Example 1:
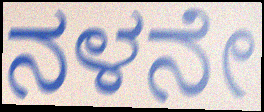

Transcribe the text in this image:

ನಳನೇ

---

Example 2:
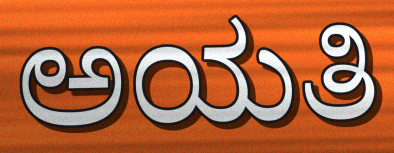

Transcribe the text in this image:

ಅಯತಿ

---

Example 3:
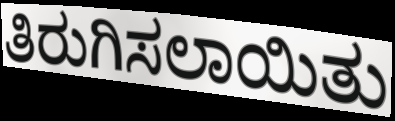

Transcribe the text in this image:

ತಿರುಗಿಸಲಾಯಿತು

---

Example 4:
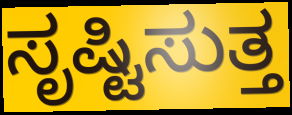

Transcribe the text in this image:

ಸೃಷ್ಟಿಸುತ್ತ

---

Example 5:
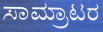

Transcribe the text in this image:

ಸಾಮ್ರಾಟರ